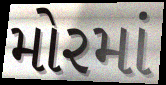
મોરમાં